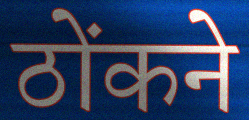
ठोंकने